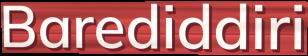
Barediddiri